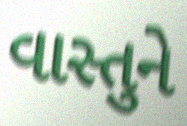
વાસ્તુને